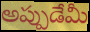
అప్పుడేమీ